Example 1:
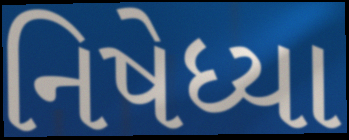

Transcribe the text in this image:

નિષેધ્યા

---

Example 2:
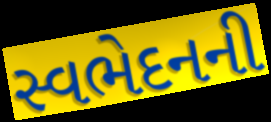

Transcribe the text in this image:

સ્વભેદનની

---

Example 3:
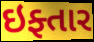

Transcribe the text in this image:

ઇફ્તાર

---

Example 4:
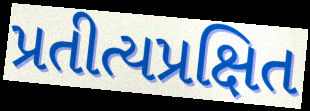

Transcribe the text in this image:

પ્રતીત્યપ્રક્ષિત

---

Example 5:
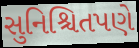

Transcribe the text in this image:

સુનિશ્ચિતપણે